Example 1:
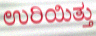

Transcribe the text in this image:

ಉರಿಯಿತ್ತು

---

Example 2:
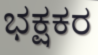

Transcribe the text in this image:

ಭಕ್ಷಕರ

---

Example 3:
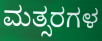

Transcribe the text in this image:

ಮತ್ಸರಗಳ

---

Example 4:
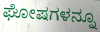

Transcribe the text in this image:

ಘೋಷಗಳನ್ನೂ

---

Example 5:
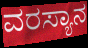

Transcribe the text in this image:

ವರಸ್ಯಾನ